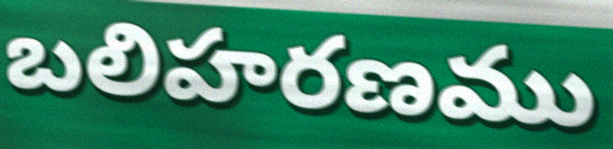
బలిహరణము